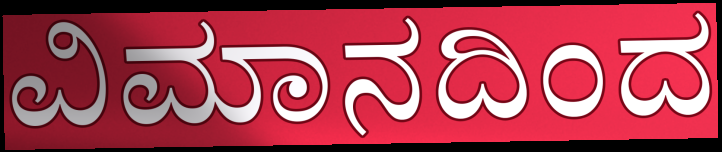
ವಿಮಾನದಿಂದ